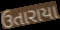
ઉતારાયા